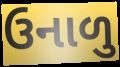
ઉનાળુ